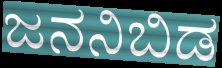
ಜನನಿಬಿಡ